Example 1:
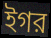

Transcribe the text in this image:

ইগর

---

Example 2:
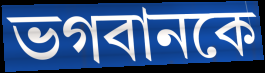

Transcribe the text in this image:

ভগবানকে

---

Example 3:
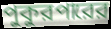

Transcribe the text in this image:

পুকুরপারের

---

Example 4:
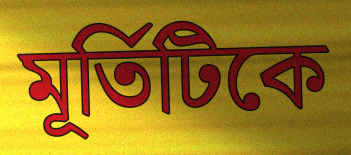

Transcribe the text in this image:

মূর্তিটিকে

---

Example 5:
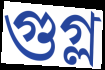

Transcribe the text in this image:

গুগ্ল